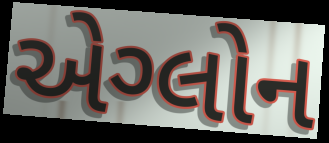
એગ્લોન